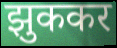
झुककर